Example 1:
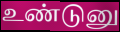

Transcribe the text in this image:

உண்டுனு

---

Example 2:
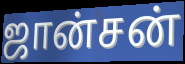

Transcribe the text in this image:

ஜான்சன்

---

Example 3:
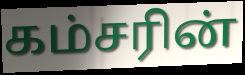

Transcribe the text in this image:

கம்சரின்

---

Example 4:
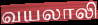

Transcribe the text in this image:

வயலாலி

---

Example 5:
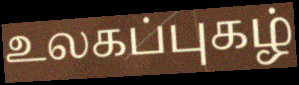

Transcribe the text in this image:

உலகப்புகழ்